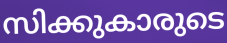
സിക്കുകാരുടെ